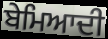
ਬੇਮਿਆਦੀ